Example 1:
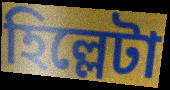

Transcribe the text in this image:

হিল্লেটা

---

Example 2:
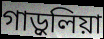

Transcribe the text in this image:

গাড়ুলিয়া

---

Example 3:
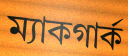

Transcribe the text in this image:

ম্যাকগার্ক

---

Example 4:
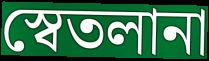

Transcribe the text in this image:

স্বেতলানা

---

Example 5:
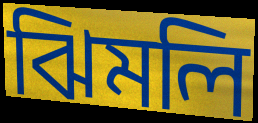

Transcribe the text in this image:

ঝিমলি